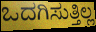
ಒದಗಿಸುತ್ತಿಲ್ಲ